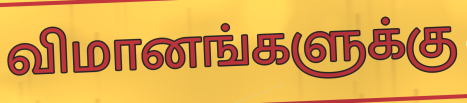
விமானங்களுக்கு